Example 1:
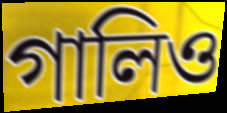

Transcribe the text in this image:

গালিও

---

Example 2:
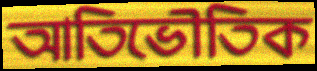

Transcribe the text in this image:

আতিভৌতিক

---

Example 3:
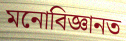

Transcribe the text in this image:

মনোবিজ্ঞানত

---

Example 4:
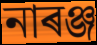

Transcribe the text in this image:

নাৰঞ্জ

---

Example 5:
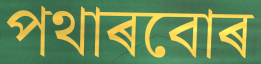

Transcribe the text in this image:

পথাৰবোৰ